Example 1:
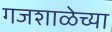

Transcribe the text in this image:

गजशाळेच्या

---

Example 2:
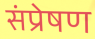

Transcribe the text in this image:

संप्रेषण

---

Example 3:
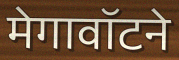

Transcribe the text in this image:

मेगावॉटने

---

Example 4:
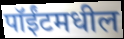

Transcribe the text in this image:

पॉईंटमधील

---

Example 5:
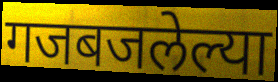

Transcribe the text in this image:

गजबजलेल्या